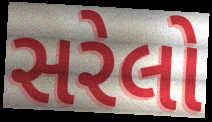
સરેલો